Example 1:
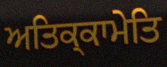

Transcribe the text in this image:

ਅਤਿਕ੍ਕਾਮੇਤਿ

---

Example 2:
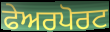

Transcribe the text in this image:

ਫੇਅਰਪੋਰਟ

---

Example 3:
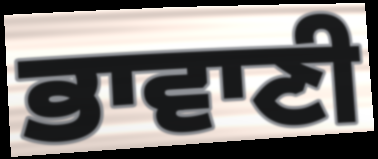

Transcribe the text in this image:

ਭਾਵਾਣੀ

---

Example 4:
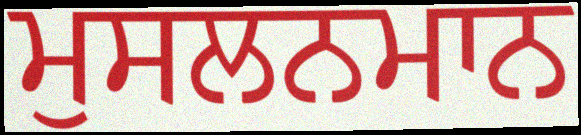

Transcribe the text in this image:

ਮੁਸਲਨਮਾਨ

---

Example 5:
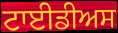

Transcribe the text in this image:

ਟਾਈਡੀਅਸ